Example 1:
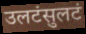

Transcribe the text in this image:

उलटंसुलटं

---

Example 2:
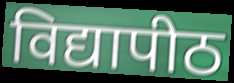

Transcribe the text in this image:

विद्यापीठ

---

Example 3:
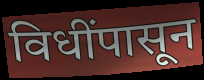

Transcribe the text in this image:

विधींपासून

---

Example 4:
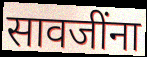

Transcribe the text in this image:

सावजींना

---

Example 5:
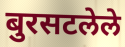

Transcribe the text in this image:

बुरसटलेले